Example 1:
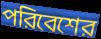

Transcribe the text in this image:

পরিবেশের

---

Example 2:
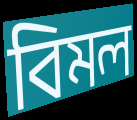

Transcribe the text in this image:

বিমল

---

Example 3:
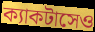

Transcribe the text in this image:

ক্যাকটাসেও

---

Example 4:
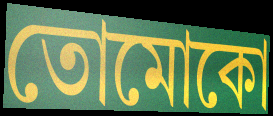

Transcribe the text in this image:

তোমোকো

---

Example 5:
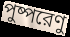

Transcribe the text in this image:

পুষ্পরেণু